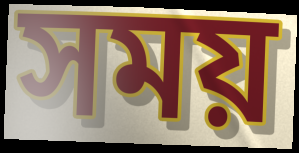
সময়